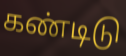
கண்டிடு